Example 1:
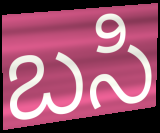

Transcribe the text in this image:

బసి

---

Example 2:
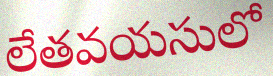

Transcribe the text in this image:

లేతవయసులో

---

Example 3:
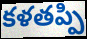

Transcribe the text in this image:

కళతప్పి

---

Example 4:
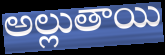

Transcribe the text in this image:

అల్లుతాయి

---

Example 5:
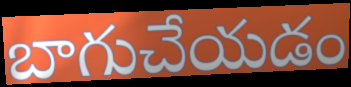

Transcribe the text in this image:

బాగుచేయడం